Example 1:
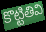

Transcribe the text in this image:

కొట్టితివి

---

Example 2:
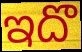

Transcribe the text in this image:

ఇదొ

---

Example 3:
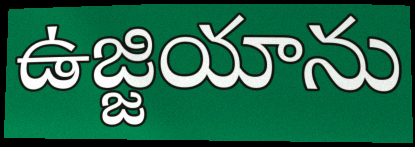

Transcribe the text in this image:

ఉజ్జియాను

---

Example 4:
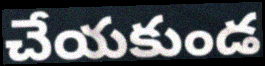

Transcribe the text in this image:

చేయకుండ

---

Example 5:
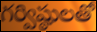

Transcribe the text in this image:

గర్విష్ఠులతో